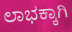
ಲಾಭಕ್ಕಾಗಿ